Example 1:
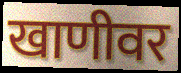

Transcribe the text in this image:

खाणीवर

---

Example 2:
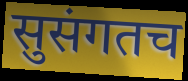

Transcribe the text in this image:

सुसंगतच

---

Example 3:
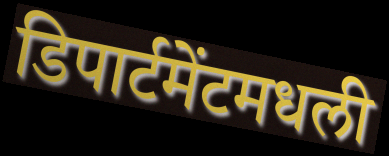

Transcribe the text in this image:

डिपार्टमेंटमधली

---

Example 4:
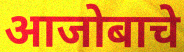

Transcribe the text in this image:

आजोबाचे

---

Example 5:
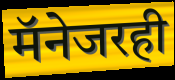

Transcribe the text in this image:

मॅनेजरही